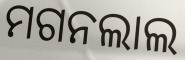
ମଗନଲାଲ